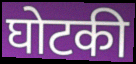
घोटकी